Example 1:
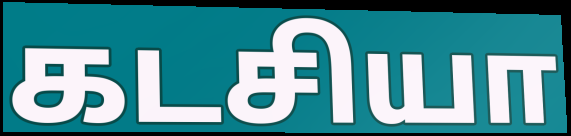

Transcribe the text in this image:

கடசியா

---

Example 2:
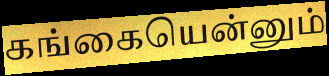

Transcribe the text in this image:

கங்கையென்னும்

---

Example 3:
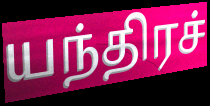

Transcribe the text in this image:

யந்திரச்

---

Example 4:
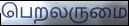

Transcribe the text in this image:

பெறலருமை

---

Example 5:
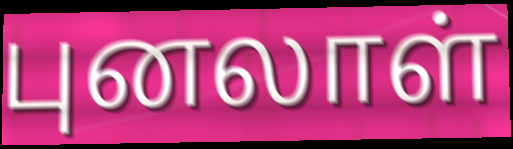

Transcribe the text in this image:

புனலாள்